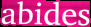
abides